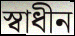
স্বাধীন